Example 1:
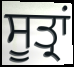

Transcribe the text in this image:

ਸੂਤ੍ਰਾਂ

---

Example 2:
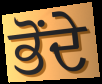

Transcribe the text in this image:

ਭੋਂਦੇ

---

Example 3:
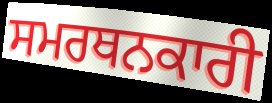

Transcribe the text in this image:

ਸਮਰਥਨਕਾਰੀ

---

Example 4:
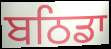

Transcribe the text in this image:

ਬਠਿਡਾ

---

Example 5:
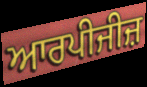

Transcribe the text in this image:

ਆਰਪੀਜੀਜ਼